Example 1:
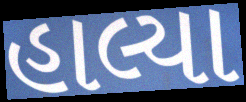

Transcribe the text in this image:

હાલ્યા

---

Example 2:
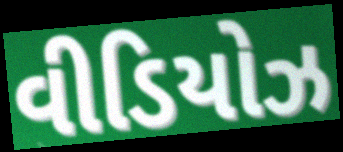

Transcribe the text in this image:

વીડિયોઝ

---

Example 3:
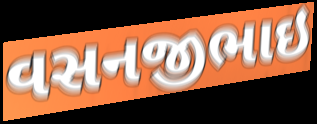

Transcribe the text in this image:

વસનજીભાઇ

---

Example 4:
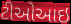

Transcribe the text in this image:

ટીઓઆઇ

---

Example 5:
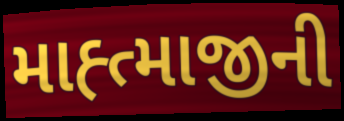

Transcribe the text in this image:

માહ્ત્માજીની